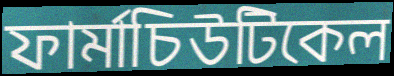
ফাৰ্মাচিউটিকেল